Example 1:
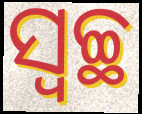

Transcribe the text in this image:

ସ୍ବଚ୍ଛ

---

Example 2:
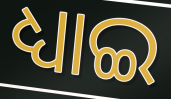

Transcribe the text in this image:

ଧ୍ୟାଇ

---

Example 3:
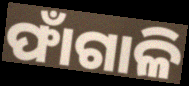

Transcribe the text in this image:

ଫାଁଗାଳି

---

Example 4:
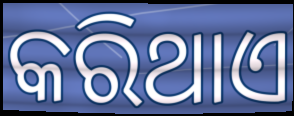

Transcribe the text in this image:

କରିଥାଏ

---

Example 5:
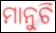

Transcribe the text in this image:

ମାନୁଚି